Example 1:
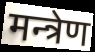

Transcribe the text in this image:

मन्त्रेण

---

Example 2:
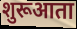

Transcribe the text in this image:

शुरूआता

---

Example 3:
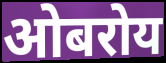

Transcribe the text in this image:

ओबरोय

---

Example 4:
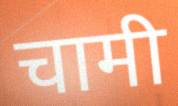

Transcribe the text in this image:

चामी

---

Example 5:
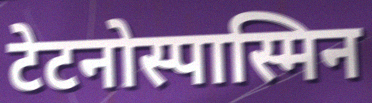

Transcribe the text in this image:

टेटनोस्पास्मिन